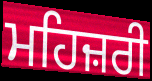
ਮਹਿਜ਼ਰੀ